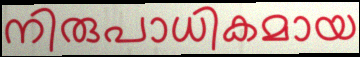
നിരുപാധികമായ